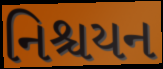
નિશ્ચયન